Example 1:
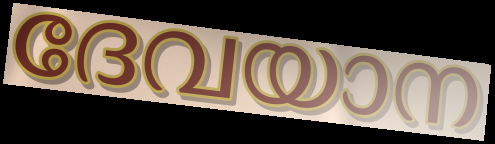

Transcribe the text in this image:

ദേവയാന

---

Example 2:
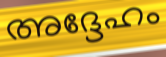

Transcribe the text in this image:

അദ്ദേഹം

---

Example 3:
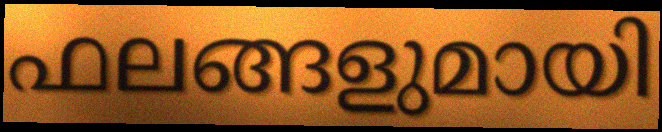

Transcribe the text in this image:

ഫലങ്ങളുമായി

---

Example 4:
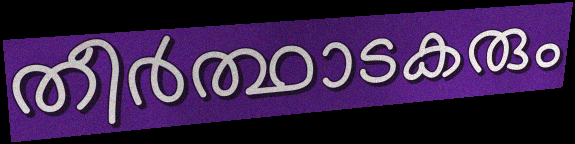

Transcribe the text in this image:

തീർത്ഥാടകരും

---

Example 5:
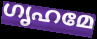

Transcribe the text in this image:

ഗൃഹമേ